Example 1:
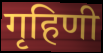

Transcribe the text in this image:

गृहिणी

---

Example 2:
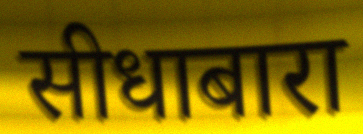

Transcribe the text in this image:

सीधाबारा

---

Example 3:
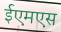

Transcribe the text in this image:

ईएमएस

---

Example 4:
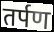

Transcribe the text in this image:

तर्पण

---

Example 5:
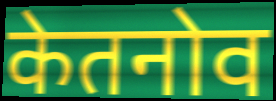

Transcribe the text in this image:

केतनोव